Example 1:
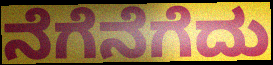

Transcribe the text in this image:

ನೆಗೆನೆಗೆದು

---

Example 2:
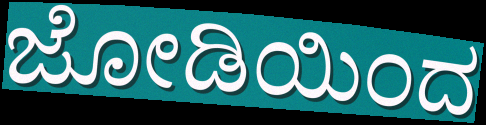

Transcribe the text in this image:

ಜೋಡಿಯಿಂದ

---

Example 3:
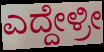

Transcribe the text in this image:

ಎದ್ದೇಳ್ರೀ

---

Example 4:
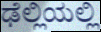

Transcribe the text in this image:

ಢೆಲ್ಲಿಯಲ್ಲಿ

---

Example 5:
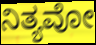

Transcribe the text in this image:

ನಿತ್ಯವೋ